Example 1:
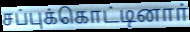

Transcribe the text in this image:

சப்புக்கொட்டினார்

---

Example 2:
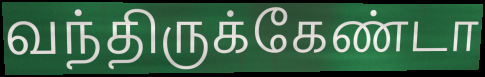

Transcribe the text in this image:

வந்திருக்கேண்டா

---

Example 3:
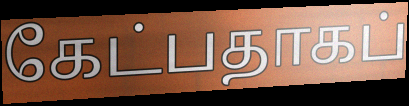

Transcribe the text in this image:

கேட்பதாகப்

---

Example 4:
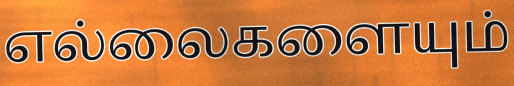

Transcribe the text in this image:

எல்லைகளையும்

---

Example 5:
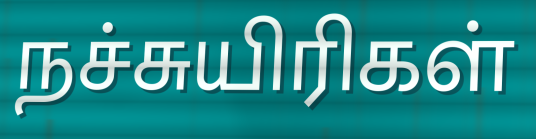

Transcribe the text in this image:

நச்சுயிரிகள்